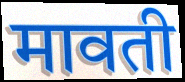
मावती